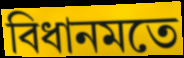
বিধানমতে